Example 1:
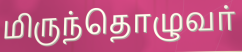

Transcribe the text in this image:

மிருந்தொழுவர்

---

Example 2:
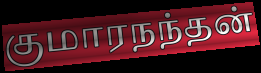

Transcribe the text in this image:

குமாரநந்தன்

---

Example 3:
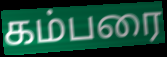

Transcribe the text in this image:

கம்பரை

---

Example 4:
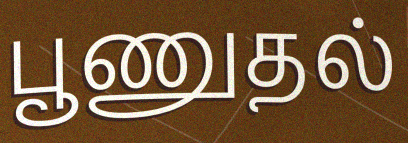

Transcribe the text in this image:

பூணுதல்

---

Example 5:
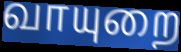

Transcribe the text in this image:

வாயுறை